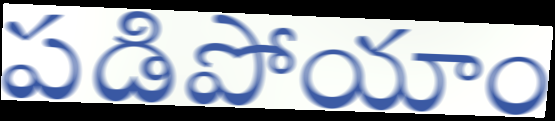
పడిపోయాం